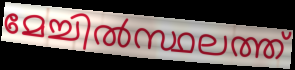
മേച്ചിൽസ്ഥലത്ത്